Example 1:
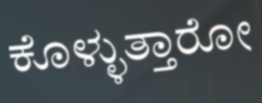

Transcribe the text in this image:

ಕೊಳ್ಳುತ್ತಾರೋ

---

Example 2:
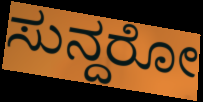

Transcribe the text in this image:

ಸುನ್ದರೋ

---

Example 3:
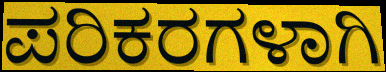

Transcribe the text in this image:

ಪರಿಕರಗಳಾಗಿ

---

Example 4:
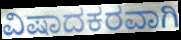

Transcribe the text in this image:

ವಿಷಾದಕರವಾಗಿ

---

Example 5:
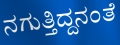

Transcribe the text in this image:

ನಗುತ್ತಿದ್ದನಂತೆ